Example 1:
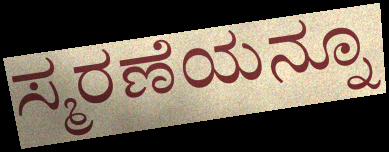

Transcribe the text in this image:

ಸ್ಮರಣೆಯನ್ನೂ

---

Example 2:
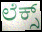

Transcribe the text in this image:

ಲೆಕ್ಸ್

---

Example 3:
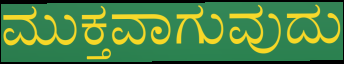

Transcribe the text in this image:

ಮುಕ್ತವಾಗುವುದು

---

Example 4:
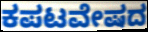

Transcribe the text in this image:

ಕಪಟವೇಷದ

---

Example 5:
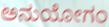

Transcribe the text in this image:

ಅನುಯೋಗಂ